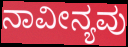
ನಾವೀನ್ಯವು